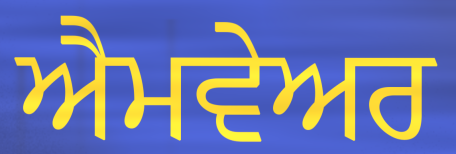
ਐਮਵੇਅਰ